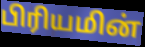
பிரியமின்